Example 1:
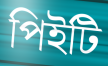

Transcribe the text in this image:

পিইটি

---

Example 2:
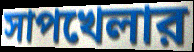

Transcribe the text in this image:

সাপখেলার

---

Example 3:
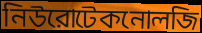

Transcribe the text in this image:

নিউরোটেকনোলজি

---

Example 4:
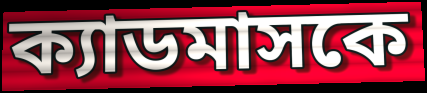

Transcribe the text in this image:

ক্যাডমাসকে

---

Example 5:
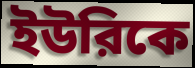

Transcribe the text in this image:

ইউরিকে